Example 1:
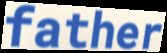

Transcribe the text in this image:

father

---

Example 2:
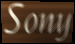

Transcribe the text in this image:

Sony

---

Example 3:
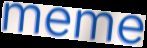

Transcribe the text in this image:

meme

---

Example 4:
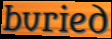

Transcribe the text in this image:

buried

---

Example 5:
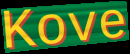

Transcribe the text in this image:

Kove